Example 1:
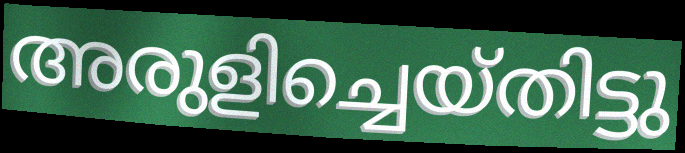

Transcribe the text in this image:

അരുളിച്ചെയ്തിട്ടു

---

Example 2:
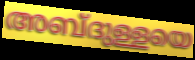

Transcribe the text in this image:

അബ്ദുള്ളയെ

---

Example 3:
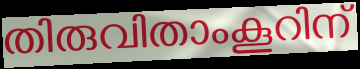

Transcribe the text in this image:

തിരുവിതാംകൂറിന്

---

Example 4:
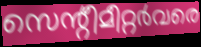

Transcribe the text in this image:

സെന്റീമീറ്റർവരെ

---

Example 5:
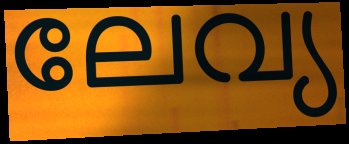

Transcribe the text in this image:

ലേവ്യ